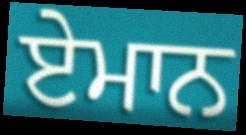
ਏਮਾਨ